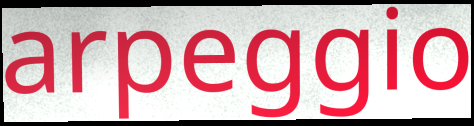
arpeggio